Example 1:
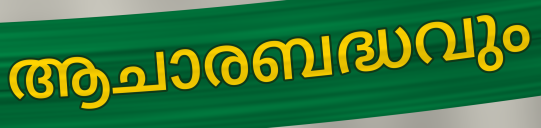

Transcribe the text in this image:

ആചാരബദ്ധവും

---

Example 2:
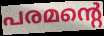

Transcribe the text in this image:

പരമന്റെ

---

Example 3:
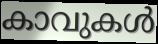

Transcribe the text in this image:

കാവുകൾ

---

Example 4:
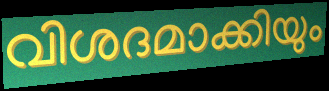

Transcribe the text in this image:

വിശദമാക്കിയും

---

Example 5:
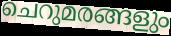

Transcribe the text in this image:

ചെറുമരങ്ങളും